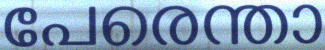
പേരെന്താ